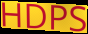
HDPS